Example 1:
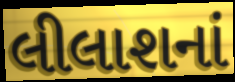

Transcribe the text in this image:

લીલાશનાં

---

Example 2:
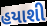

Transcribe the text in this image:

હયાશી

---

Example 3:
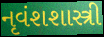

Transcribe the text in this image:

નૃવંશશાસ્ત્રી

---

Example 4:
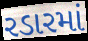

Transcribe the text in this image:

રડારમાં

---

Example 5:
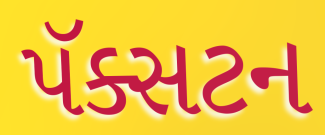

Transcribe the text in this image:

પૅક્સટન